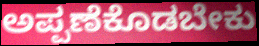
ಅಪ್ಪಣೆಕೊಡಬೇಕು